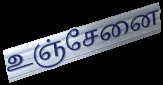
உஞ்சேனை